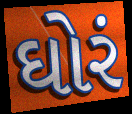
ઘોરં